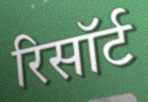
रिसॉर्ट